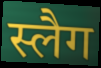
स्लैग